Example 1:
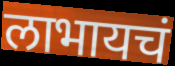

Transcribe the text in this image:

लाभायचं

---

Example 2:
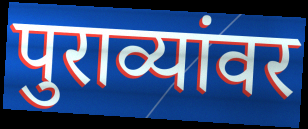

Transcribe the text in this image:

पुराव्यांवर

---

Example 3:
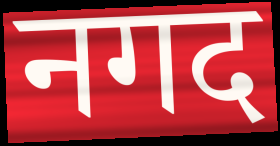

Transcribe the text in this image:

नगद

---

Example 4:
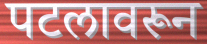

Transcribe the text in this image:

पटलावरून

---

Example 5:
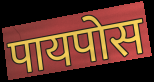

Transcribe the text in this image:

पायपोस